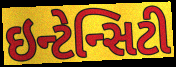
ઇન્ટેન્સિટી